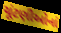
ચૂંટણીઓનાં